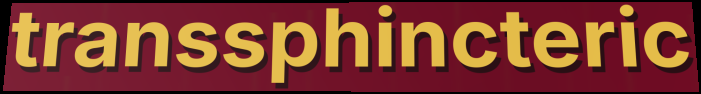
transsphincteric